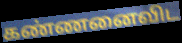
கண்ணனைவிட